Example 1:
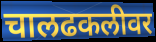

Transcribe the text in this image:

चालढकलीवर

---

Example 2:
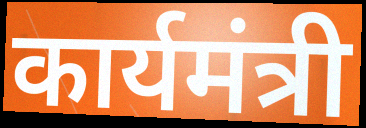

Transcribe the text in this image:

कार्यमंत्री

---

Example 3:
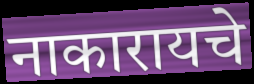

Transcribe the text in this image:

नाकारायचे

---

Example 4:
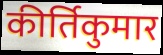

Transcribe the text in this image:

कीर्तिकुमार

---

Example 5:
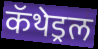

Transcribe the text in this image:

कॅथेड्रल